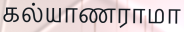
கல்யாணராமா